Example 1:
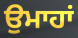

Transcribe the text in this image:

ਉਮਾਹਾਂ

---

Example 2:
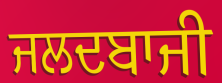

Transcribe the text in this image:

ਜਲਦਬਾਜੀ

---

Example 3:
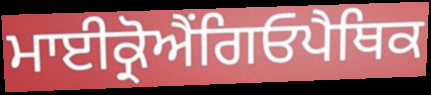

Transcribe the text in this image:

ਮਾਈਕ੍ਰੋਐਂਗਿਓਪੈਥਿਕ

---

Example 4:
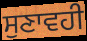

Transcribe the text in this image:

ਸੁਣਾਵਹੀ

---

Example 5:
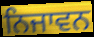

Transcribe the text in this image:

ਨਿਜਾਵਨ